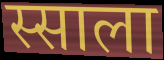
स्साला